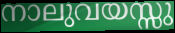
നാലുവയസ്സു